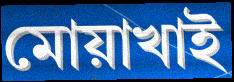
মোয়াখাই